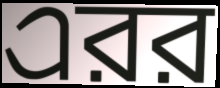
এরর